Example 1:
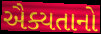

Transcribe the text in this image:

ઐક્યતાનો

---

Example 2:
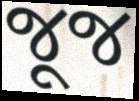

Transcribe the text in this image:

જૂજ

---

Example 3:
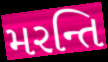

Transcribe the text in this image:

મરન્તિ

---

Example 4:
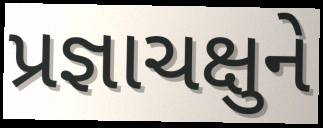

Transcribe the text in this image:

પ્રજ્ઞાચક્ષુને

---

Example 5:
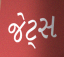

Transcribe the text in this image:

જેટ્સ